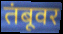
तंबूवर